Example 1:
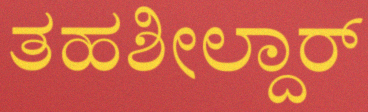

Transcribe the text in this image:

ತಹಶೀಲ್ದಾರ್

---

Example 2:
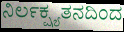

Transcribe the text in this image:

ನಿರ್ಲಕ್ಷ್ಯತನದಿಂದ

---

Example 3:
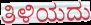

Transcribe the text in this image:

ತಿಳಿಯದು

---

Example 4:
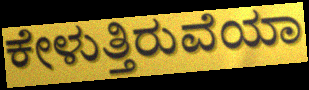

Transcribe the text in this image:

ಕೇಳುತ್ತಿರುವೆಯಾ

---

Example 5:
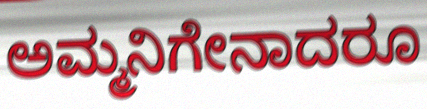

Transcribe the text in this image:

ಅಮ್ಮನಿಗೇನಾದರೂ